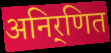
अनिर्णित